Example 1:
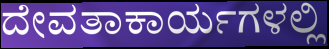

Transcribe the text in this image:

ದೇವತಾಕಾರ್ಯಗಳಲ್ಲಿ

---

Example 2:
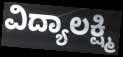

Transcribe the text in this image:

ವಿದ್ಯಾಲಕ್ಷ್ಮಿ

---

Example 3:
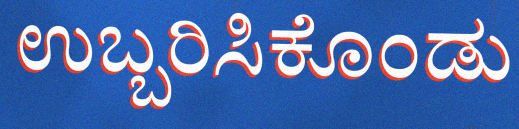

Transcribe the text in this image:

ಉಬ್ಬರಿಸಿಕೊಂಡು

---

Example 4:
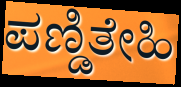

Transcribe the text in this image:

ಪಣ್ಡಿತೇಹಿ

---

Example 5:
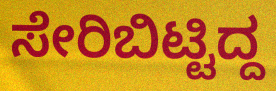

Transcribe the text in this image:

ಸೇರಿಬಿಟ್ಟಿದ್ದ